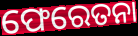
ଫେରେତନା